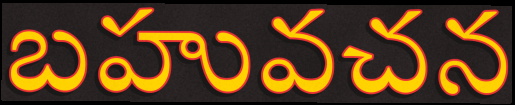
బహువచన